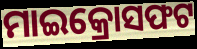
ମାଇକ୍ରୋସଫଟ